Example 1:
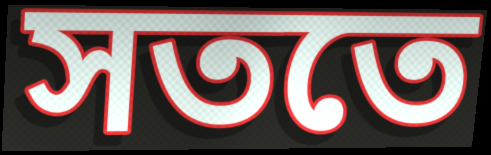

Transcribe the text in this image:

সততে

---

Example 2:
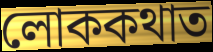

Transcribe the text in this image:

লোককথাত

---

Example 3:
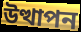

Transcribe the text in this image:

উত্থাপন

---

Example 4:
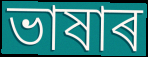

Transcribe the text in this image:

ভাষাৰ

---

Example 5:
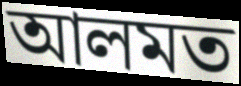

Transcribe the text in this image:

আলমত